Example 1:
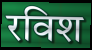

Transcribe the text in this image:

रविश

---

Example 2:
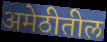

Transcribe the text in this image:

अमेठीतील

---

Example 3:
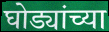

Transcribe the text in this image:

घोड्यांच्या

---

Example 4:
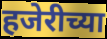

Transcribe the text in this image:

हजेरीच्या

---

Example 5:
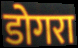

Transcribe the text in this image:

डोगरा